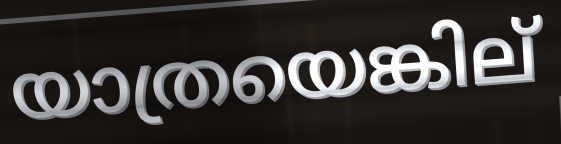
യാത്രയെങ്കില്